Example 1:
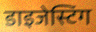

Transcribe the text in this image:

डाइजेस्टिंग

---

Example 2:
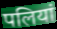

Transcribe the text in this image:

पलियां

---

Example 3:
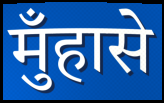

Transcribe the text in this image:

मुँहासे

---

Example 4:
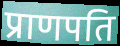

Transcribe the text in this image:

प्राणपति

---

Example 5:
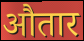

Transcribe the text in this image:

औतार